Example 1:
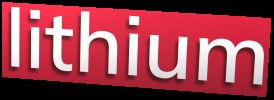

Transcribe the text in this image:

lithium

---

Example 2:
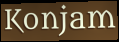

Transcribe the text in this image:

Konjam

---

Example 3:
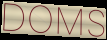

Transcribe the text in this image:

DOMS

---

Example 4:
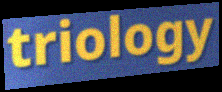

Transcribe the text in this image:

triology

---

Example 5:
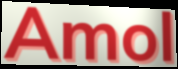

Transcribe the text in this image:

Amol